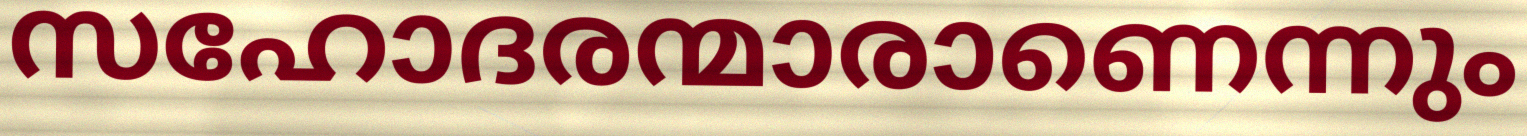
സഹോദരന്മാരാണെന്നും